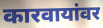
कारवायांवर